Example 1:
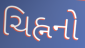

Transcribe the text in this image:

ચિહ્નનો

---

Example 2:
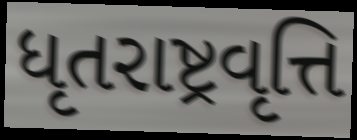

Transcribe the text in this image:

ધૃતરાષ્ટ્રવૃત્તિ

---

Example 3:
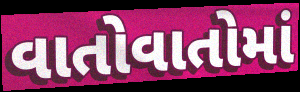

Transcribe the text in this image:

વાતોવાતોમાં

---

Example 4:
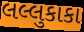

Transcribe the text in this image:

લલ્લુકાકા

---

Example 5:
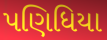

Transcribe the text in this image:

પણિધિયા